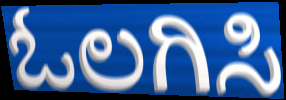
ಓಲಗಿಸಿ